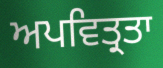
ਅਪਵਿਤ੍ਰਤਾ